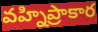
వహ్నిప్రాకార